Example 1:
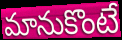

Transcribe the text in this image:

మానుకొంటే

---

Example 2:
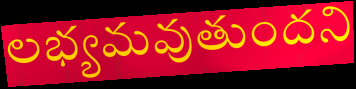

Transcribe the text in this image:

లభ్యమవుతుందని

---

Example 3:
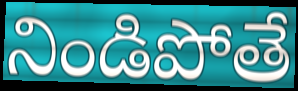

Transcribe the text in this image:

నిండిపోతే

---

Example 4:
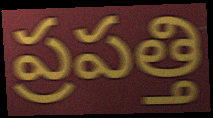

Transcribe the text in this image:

ప్రపత్తి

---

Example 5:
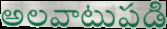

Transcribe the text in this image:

అలవాటుపడి